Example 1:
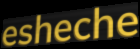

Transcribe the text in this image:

esheche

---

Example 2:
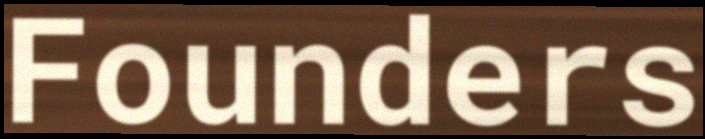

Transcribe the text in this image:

Founders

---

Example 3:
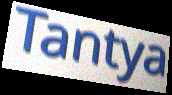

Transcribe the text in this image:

Tantya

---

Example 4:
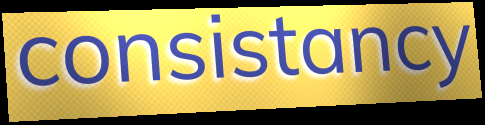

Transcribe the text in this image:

consistancy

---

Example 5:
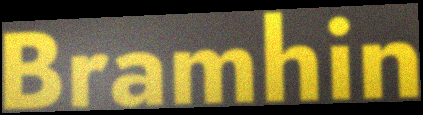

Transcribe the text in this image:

Bramhin